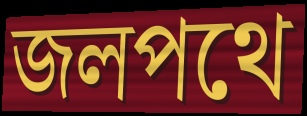
জলপথে